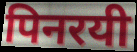
पिनरयी